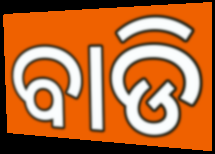
ବାଡି